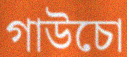
গাউচো